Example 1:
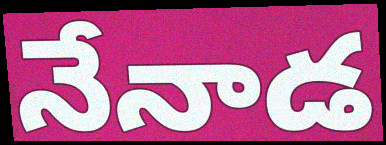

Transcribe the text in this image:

నేనాడ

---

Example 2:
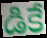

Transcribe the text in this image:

డికే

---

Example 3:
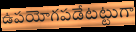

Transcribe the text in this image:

ఉపయోగపడేటట్టుగా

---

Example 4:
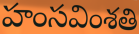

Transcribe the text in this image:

హంసవింశతి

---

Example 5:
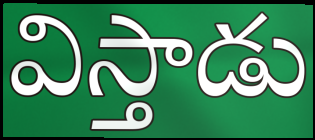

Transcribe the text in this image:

విస్తాడు